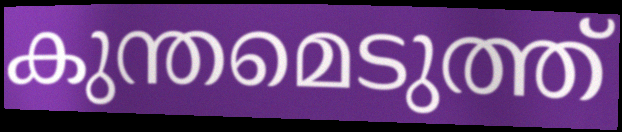
കുന്തമെടുത്ത്